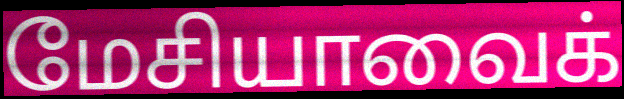
மேசியாவைக்